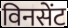
विनसेंट